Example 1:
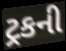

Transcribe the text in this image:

ટ્રકની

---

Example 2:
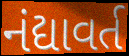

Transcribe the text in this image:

નંદ્યાવર્ત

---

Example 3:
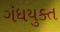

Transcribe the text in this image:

ગંધયુક્ત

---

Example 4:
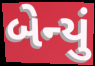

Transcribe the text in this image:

બેન્યું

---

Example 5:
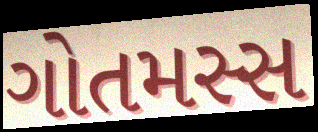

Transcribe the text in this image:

ગોતમસ્સ